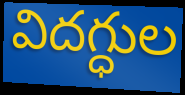
విదగ్ధుల